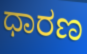
ಧಾರಣ